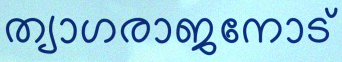
ത്യാഗരാജനോട്